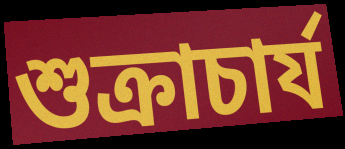
শুক্রাচার্য